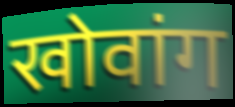
खोवांग